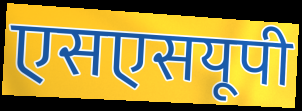
एसएसयूपी